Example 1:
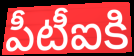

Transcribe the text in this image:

పీటీఐకి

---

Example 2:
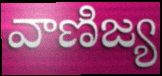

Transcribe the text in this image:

వాణిజ్య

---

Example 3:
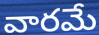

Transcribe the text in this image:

వారమే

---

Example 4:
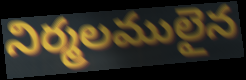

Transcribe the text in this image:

నిర్మలములైన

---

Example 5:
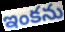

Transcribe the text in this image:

ఇంకను